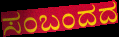
ಸಂಬಂದದ